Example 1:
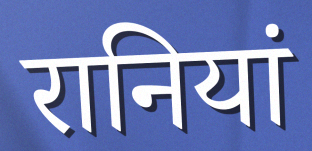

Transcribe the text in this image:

रानियां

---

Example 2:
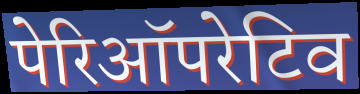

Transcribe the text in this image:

पेरिऑपरेटिव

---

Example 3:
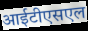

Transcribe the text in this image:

आईटीएसएल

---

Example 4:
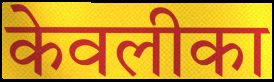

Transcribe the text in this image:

केवलीका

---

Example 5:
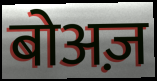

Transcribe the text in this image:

बोअज़